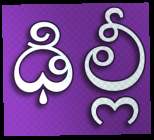
ఢిల్లీ